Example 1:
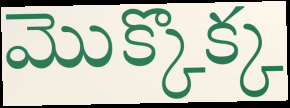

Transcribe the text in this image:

మొక్కొక్క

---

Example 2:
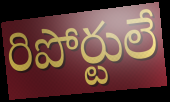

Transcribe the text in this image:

రిపోర్టులే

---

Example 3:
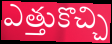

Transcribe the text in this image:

ఎత్తుకొచ్చి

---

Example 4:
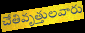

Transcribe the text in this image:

చేతివృత్తులవారు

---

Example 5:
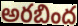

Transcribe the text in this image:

అరబింద